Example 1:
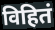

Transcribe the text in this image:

विहितं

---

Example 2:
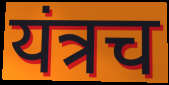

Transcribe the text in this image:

यंत्रच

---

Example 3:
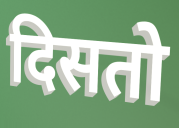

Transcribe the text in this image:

दिसतो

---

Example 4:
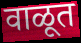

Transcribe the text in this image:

वाळूत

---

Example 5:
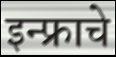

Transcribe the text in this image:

इन्फ्राचे